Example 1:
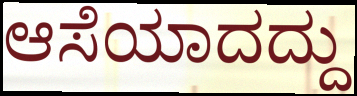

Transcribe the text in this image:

ಆಸೆಯಾದದ್ದು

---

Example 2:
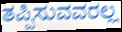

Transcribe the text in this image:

ತಪ್ಪಿಸುವವರಲ್ಲ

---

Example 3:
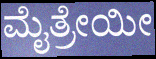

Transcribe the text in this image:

ಮೈತ್ರೇಯೀ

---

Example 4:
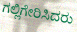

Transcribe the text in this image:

ಗಲ್ಲಿಗೇರಿಸಿದರು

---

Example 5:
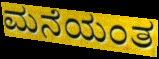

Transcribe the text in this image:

ಮನೆಯಂತ